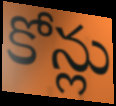
కోన్లు